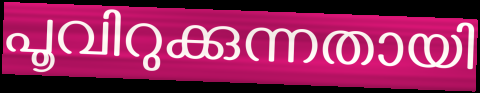
പൂവിറുക്കുന്നതായി